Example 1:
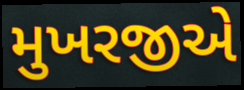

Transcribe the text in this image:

મુખરજીએ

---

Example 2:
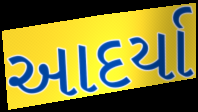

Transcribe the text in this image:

આદર્યા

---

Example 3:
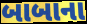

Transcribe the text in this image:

બાબાના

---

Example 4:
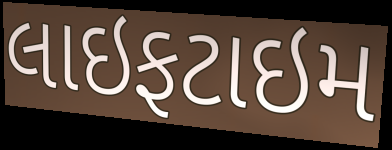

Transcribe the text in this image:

લાઇફટાઇમ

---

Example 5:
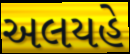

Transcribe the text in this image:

અલયહે